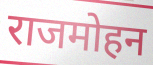
राजमोहन